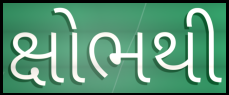
ક્ષોભથી